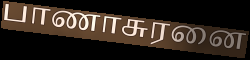
பாணாசுரனை